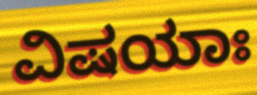
ವಿಷಯಾಃ